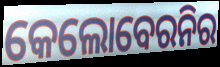
କେଲୋବେରନିର